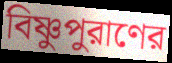
বিষ্ণুপুরাণের